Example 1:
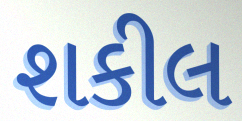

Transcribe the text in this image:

શકીલ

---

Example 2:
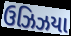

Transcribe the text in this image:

ઉઝિઝયા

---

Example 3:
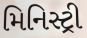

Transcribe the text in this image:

મિનિસ્ટ્રી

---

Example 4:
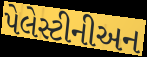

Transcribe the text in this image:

પેલેસ્ટીનીઅન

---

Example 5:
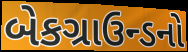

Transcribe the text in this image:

બેકગ્રાઉન્ડનો